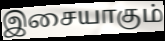
இசையாகும்